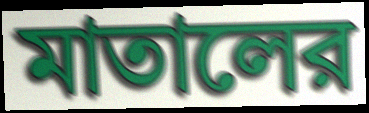
মাতালের